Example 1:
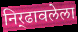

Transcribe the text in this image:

निर्ढावलेला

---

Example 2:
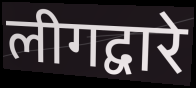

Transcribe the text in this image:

लीगद्वारे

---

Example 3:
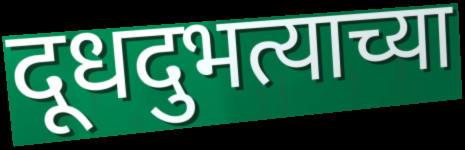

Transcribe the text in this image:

दूधदुभत्याच्या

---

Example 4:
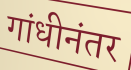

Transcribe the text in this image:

गांधीनंतर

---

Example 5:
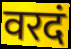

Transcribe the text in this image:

वरदं